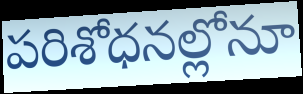
పరిశోధనల్లోనూ